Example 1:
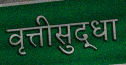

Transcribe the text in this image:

वृत्तीसुद्धा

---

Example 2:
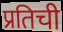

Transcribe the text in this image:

प्रतिची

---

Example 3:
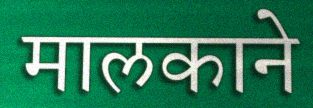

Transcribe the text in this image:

मालकाने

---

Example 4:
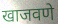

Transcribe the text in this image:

खाजवणे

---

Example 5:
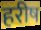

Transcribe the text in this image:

हरीष